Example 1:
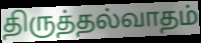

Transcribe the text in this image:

திருத்தல்வாதம்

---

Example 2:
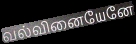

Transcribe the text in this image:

வல்வினையேனே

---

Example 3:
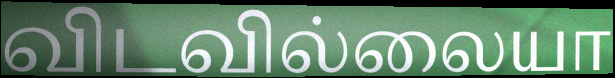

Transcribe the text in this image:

விடவில்லையா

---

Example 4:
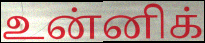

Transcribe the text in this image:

உன்னிக்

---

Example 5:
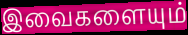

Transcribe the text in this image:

இவைகளையும்